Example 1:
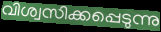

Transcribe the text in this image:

വിശ്വസിക്കപ്പെടുന്നു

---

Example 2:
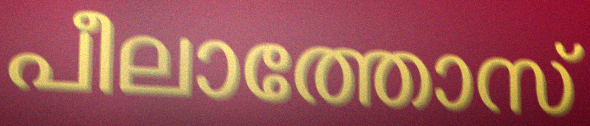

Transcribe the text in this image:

പീലാത്തോസ്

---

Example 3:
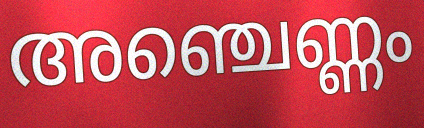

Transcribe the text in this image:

അഞ്ചെണ്ണം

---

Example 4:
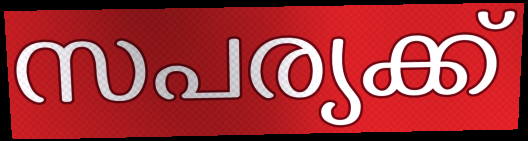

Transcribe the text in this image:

സപര്യക്ക്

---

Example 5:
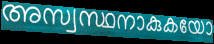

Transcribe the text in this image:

അസ്വസ്ഥനാകുകയോ